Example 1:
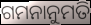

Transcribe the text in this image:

ଗମନାନୁମତି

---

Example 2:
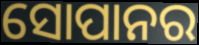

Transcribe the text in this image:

ସୋପାନର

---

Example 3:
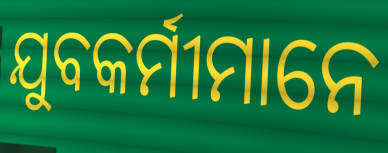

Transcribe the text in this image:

ଯୁବକର୍ମୀମାନେ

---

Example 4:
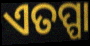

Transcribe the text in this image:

ଏତପ୍ପା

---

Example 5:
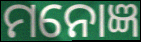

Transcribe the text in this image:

ମନୋଜ୍ଞ